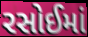
રસોઈમાં